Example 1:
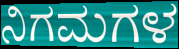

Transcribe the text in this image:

ನಿಗಮಗಳ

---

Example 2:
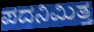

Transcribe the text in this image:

ಪದನಿಮಿತ್ತ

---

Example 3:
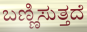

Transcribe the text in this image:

ಬಣ್ಣಿಸುತ್ತದೆ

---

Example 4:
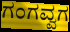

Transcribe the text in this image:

ಗಂಗವ್ವಗ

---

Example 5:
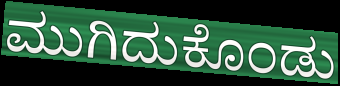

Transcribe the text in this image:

ಮುಗಿದುಕೊಂಡು